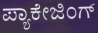
ಪ್ಯಾಕೇಜಿಂಗ್